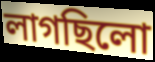
লাগছিলো